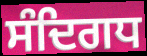
ਸੰਦਿਗਧ